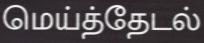
மெய்த்தேடல்